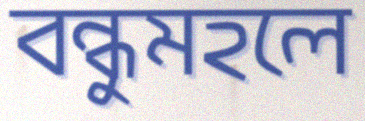
বন্ধুমহলে